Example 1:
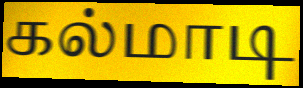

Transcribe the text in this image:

கல்மாடி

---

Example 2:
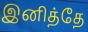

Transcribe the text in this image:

இனித்தே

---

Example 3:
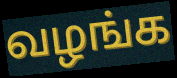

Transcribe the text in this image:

வழங்க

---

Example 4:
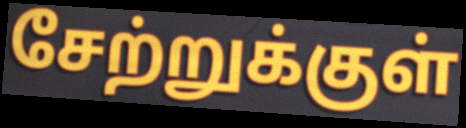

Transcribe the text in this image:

சேற்றுக்குள்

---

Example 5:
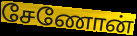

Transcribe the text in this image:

சேணோன்